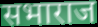
सभाराज